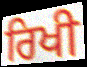
ਰਿਖੀ